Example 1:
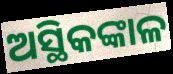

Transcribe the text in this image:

ଅସ୍ଥିକଙ୍କାଳ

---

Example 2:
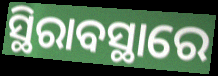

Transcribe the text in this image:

ସ୍ଥିରାବସ୍ଥାରେ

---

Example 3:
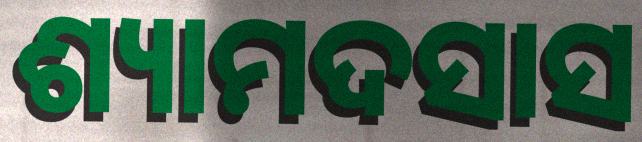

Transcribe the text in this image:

ଶ୍ୟାମଦସାସ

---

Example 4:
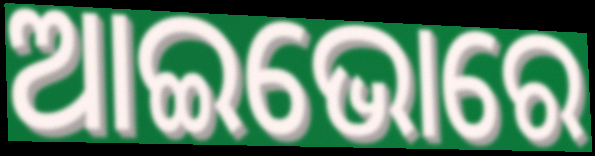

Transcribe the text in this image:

ଆଇଭୋରେ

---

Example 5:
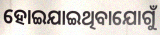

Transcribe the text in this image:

ହୋଇଯାଇଥିବାଯୋଗୁଁ